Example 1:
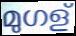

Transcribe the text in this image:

മുഗള്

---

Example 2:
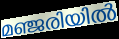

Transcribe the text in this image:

മഞ്ജരിയിൽ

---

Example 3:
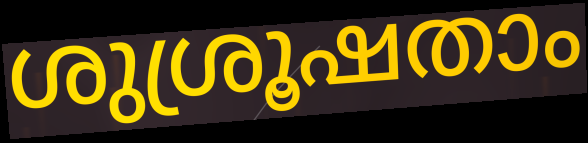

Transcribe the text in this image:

ശുശ്രൂഷതാം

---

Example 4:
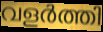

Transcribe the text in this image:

വളർത്തി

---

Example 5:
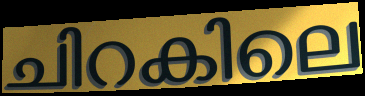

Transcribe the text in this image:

ചിറകിലെ